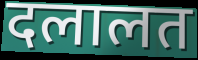
दलालत